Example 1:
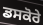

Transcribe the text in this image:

ਡਸਕੋਰੇ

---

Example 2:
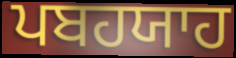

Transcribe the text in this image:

ਪਬਹਯਾਹ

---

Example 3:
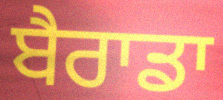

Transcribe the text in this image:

ਬੈਰਾਡਾ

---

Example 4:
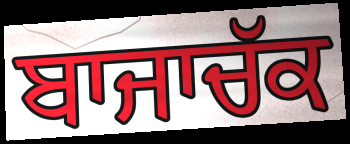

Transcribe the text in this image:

ਬਾਜਾਚੱਕ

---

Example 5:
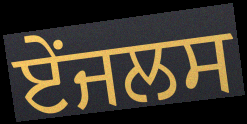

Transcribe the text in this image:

ਏਂਜਲਸ